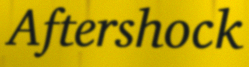
Aftershock